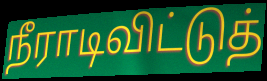
நீராடிவிட்டுத்